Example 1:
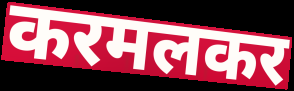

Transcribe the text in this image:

करमलकर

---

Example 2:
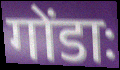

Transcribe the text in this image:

गोंडाः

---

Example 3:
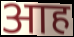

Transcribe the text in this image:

आह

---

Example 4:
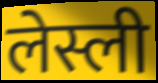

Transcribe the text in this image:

लेस्ली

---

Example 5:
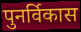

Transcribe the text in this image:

पुनर्विकास